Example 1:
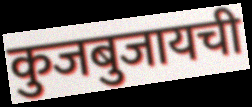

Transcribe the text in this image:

कुजबुजायची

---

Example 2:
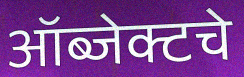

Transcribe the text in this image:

ऑब्जेक्टचे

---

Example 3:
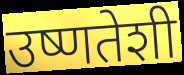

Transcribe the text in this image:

उष्णतेशी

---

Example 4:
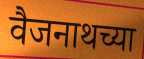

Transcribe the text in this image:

वैजनाथच्या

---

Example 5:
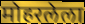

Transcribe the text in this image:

मोहरलेला